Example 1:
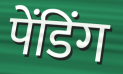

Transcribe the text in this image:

पेंडिंग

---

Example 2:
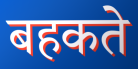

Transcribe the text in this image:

बहकते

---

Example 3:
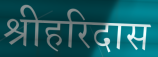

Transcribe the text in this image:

श्रीहरिदास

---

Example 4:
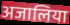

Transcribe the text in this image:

अजालिया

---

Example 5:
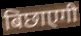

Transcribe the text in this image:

बिछाएगी